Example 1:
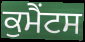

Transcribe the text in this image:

ਕੁਮੈਂਟਸ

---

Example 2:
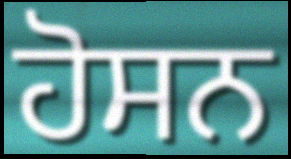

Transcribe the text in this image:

ਹੋਸਨ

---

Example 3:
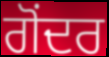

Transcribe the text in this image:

ਗੋਂਦਰ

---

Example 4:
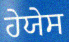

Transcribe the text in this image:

ਹੇਯੇਸ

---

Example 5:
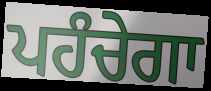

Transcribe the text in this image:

ਪਹੰਚੇਗਾ